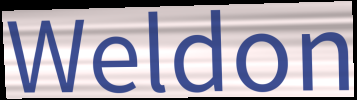
Weldon